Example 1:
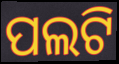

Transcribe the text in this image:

ପଲଟି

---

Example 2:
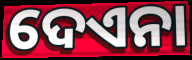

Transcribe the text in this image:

ଦେଏନା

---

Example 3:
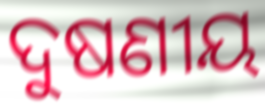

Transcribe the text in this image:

ଦୁଷଣୀୟ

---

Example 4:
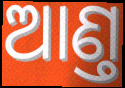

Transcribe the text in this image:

ଆଣ୍ତ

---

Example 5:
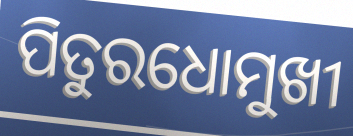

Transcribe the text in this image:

ପିତୁରଧୋମୁଖୀ